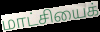
மாட்சியைக்